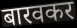
बारवकर